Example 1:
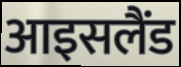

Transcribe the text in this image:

आइसलैंड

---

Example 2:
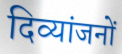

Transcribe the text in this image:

दिव्यांजनों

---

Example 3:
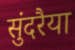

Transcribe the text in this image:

सुंदरैया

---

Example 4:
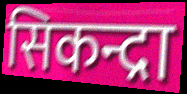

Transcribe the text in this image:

सिकन्द्रा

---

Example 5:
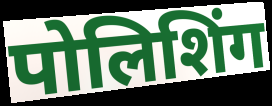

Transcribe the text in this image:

पोलिशिंग